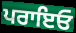
ਪਰਾਇਓ